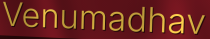
Venumadhav